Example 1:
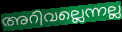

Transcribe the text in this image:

അറിവല്ലെന്നല്ല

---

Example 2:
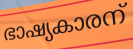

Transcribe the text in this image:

ഭാഷ്യകാരന്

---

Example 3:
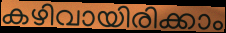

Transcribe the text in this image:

കഴിവായിരിക്കാം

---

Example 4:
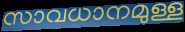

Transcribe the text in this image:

സാവധാനമുള്ള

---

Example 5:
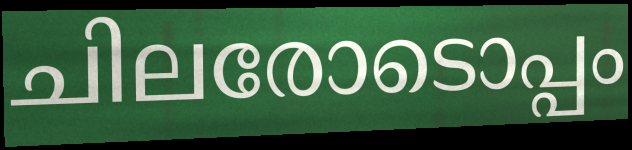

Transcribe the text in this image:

ചിലരോടൊപ്പം